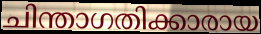
ചിന്താഗതിക്കാരായ